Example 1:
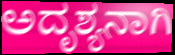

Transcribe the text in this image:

ಅದೃಶ್ಯನಾಗಿ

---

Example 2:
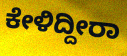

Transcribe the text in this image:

ಕೇಳಿದ್ದೀರಾ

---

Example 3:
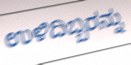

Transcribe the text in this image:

ಉಳಿದಿಬ್ಬರನ್ನು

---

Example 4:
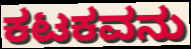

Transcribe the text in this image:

ಕಟಕವನು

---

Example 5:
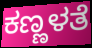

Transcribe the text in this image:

ಕಣ್ಣಳತೆ